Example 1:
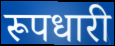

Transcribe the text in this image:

रूपधारी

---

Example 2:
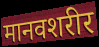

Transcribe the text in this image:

मानवशरीर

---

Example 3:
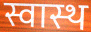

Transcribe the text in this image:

स्वास्थ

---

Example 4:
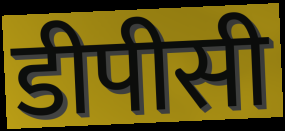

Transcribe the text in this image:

डीपीसी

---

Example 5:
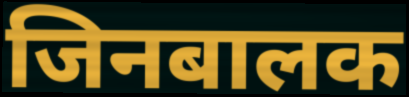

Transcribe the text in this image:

जिनबालक